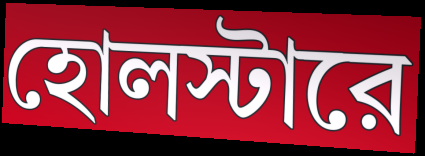
হোলস্টারে